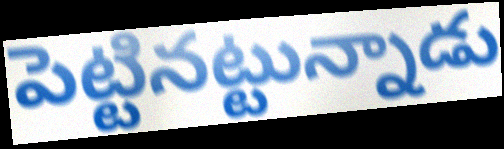
పెట్టినట్టున్నాడు